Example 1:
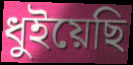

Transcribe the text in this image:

ধুইয়েছি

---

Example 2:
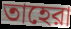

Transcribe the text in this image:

তাহেরা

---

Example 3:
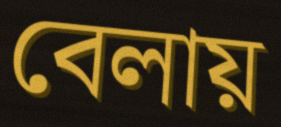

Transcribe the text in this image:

বেলায়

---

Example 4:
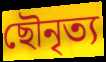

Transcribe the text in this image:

ছৌনৃত্য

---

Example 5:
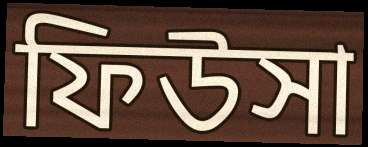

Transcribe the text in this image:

ফিউসা